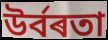
উৰ্বৰতা